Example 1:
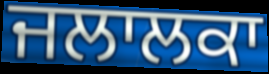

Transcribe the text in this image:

ਜਲਾਲਕਾ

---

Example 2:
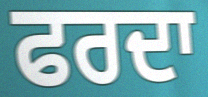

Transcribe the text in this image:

ਫਰਦਾ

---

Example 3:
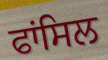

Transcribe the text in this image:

ਫਾਂਸਿਲ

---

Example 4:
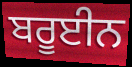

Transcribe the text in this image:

ਬਰੂਈਨ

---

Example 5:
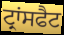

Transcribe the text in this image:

ਟ੍ਰਾਂਸਫੈਟ